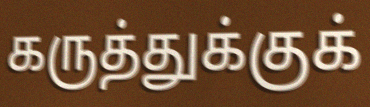
கருத்துக்குக்